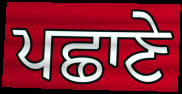
ਪਛਾਣੇ